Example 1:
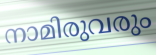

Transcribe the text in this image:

നാമിരുവരും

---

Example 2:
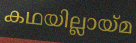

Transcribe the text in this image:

കഥയില്ലായ്മ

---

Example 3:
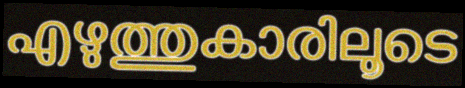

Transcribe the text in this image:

എഴുത്തുകാരിലൂടെ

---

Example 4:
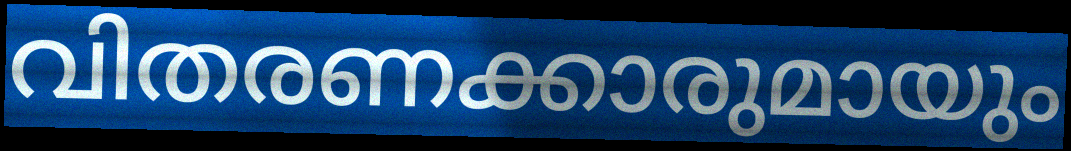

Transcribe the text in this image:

വിതരണക്കാരുമായും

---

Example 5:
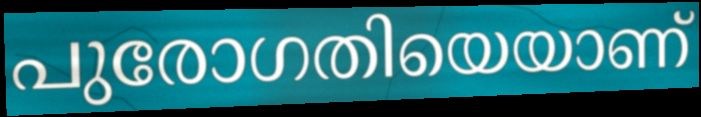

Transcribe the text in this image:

പുരോഗതിയെയാണ്